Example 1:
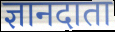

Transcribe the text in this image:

ज्ञानदाता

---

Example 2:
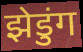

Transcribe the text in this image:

झेडुंग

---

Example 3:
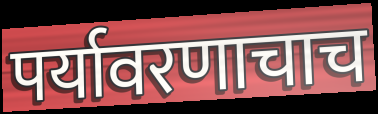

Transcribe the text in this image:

पर्यावरणाचाच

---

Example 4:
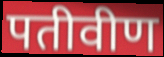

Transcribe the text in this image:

पतीवीण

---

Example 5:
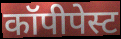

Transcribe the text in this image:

कॉपीपेस्ट